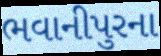
ભવાનીપુરના